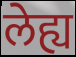
लेह्य